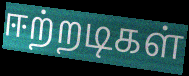
ஈற்றடிகள்